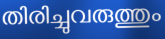
തിരിച്ചുവരുത്തും